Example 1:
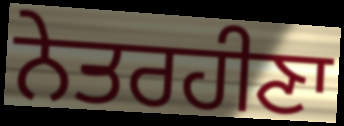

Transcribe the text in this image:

ਨੇਤਰਹੀਣਾ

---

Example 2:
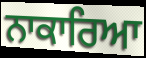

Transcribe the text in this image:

ਨਾਕਾਰਿਆ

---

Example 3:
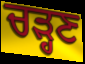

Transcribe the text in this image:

ਚੜ੍ਹਣ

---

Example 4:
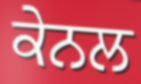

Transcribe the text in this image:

ਕੇਨਲ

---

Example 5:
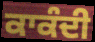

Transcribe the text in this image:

ਕਾਕੰਦੀ